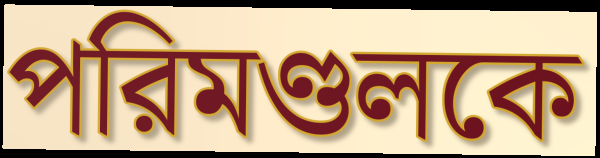
পরিমণ্ডলকে